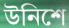
উনিশে